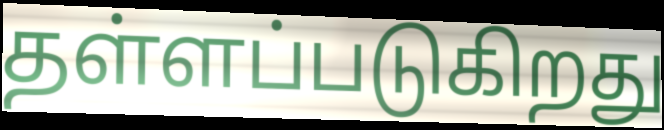
தள்ளப்படுகிறது